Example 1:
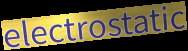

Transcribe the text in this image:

electrostatic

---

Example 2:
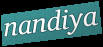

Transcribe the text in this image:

nandiya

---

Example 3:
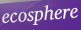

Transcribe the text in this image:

ecosphere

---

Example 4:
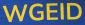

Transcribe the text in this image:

WGEID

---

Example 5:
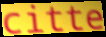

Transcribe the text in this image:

citte